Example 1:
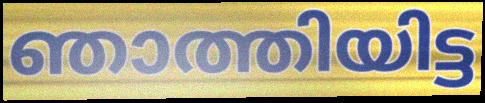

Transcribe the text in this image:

ഞാത്തിയിട്ട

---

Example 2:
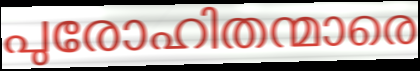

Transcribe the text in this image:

പുരോഹിതന്മാരെ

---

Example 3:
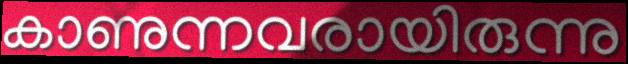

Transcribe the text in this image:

കാണുന്നവരായിരുന്നു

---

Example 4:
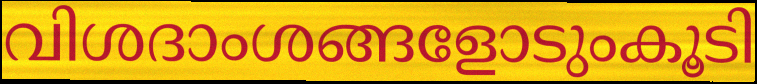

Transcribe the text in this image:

വിശദാംശങ്ങളോടുംകൂടി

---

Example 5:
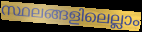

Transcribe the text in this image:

സ്ഥലങ്ങളിലെല്ലാം